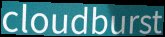
cloudburst